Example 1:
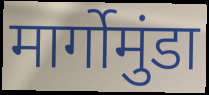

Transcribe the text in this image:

मार्गोमुंडा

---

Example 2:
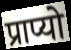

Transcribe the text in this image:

प्राप्यो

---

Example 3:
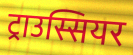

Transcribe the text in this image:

ट्राउस्सियर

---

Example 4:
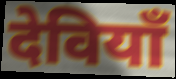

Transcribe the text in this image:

देवियाँ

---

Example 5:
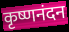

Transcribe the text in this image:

कृष्णनंदन